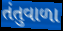
તંતુવાળા